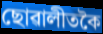
ছোৱালীতকৈ